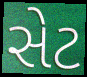
સેટ